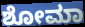
ಶೋಮಾ